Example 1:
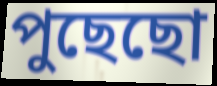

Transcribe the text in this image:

পুছেছো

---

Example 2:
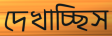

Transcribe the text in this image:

দেখাচ্ছিস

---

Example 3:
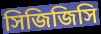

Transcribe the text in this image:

সিজিজিসি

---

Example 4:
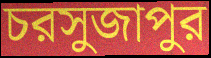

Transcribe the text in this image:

চরসুজাপুর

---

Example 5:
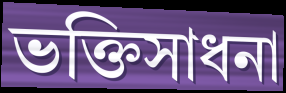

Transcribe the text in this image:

ভক্তিসাধনা